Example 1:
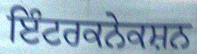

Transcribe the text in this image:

ਇੰਟਰਕਨੇਕਸ਼ਨ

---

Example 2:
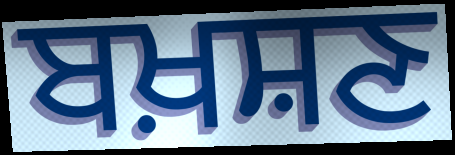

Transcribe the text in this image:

ਬਖ਼ਸ਼ਣ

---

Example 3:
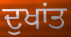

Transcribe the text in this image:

ਦੁਖਾਂਤ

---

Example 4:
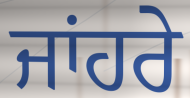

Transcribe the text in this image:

ਜਾਂਹਰੇ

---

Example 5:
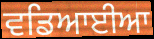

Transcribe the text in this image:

ਵਡਿਆਈਆ